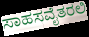
ಸಾಹಸವೈತರಲಿ